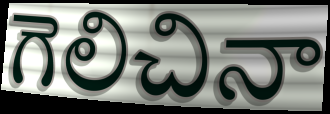
గెలిచినా